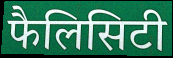
फैलिसिटी